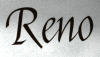
Reno